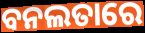
ବନଲତାରେ